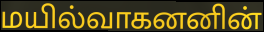
மயில்வாகனனின்